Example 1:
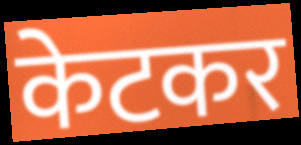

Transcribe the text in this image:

केटकर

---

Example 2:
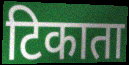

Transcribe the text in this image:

टिकाता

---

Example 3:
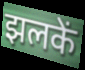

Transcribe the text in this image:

झलकें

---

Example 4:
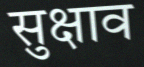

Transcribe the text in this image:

सुक्षाव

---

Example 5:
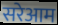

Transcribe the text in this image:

सरेआम